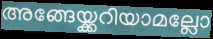
അങ്ങേയ്ക്കറിയാമല്ലോ